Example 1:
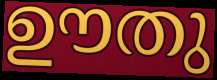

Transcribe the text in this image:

ഊതു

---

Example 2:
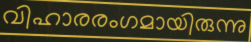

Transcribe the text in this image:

വിഹാരരംഗമായിരുന്നു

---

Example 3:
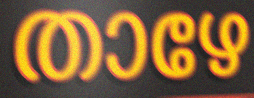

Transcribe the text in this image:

താഴേ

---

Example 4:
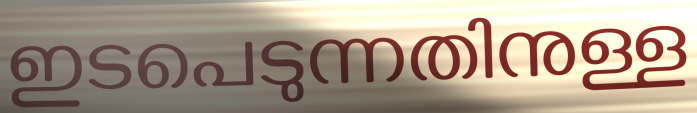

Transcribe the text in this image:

ഇടപെടുന്നതിനുള്ള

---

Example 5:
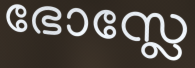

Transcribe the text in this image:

ഭോസ്ലേ